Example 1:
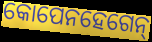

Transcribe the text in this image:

କୋପେନହେଗେନ୍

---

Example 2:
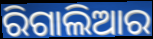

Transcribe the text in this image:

ରିଗାଲିଆର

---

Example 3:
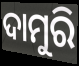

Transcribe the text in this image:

ଦାମୁରି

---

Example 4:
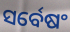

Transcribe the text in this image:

ସର୍ବେଷଂ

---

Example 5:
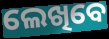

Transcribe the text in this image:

ଲେଖିବେ